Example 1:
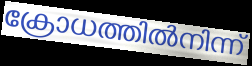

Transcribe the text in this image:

ക്രോധത്തിൽനിന്ന്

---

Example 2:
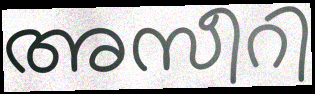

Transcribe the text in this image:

അസീറി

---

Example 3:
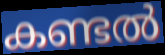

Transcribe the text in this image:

കണ്ടൽ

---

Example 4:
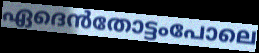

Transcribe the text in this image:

ഏദെൻതോട്ടംപോലെ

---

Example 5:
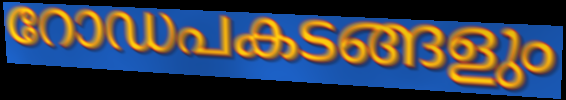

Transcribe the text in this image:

റോഡപകടങ്ങളും